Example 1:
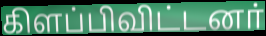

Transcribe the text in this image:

கிளப்பிவிட்டனர்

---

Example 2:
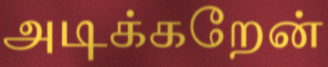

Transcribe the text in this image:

அடிக்கறேன்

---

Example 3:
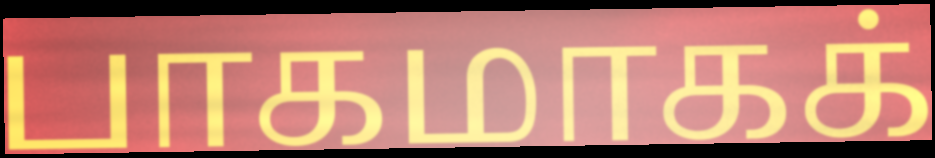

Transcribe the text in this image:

பாகமாகக்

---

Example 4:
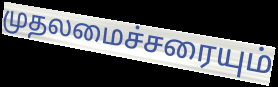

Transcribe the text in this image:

முதலமைச்சரையும்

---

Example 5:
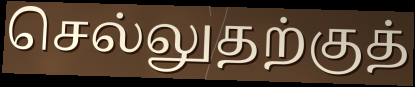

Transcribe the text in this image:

செல்லுதற்குத்